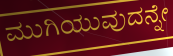
ಮುಗಿಯುವುದನ್ನೇ